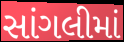
સાંગલીમાં